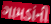
ગામડાંની